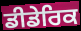
ਡੀਡੇਰਿਕ